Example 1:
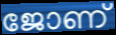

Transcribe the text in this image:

ജോണ്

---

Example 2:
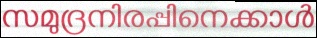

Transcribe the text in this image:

സമുദ്രനിരപ്പിനെക്കാൾ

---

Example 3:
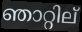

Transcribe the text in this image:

ഞാറ്റില്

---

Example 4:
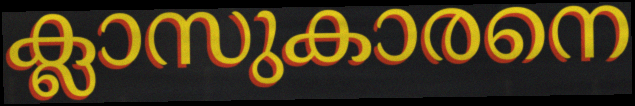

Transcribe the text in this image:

ക്ലാസുകാരനെ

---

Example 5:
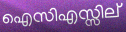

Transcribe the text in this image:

ഐസിഎസ്സില്